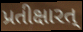
પ્રતીક્ષારત્